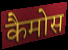
कैमोस